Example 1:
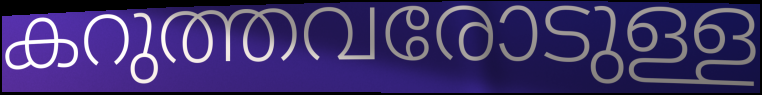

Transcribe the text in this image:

കറുത്തവരോടുള്ള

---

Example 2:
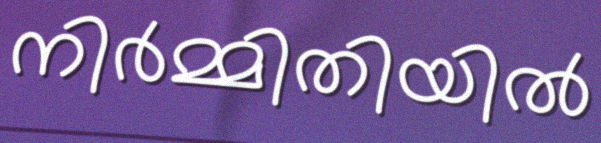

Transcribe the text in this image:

നിർമ്മിതിയിൽ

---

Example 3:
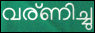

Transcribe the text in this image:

വര്ണിച്ചു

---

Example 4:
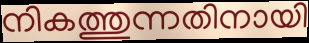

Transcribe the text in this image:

നികത്തുന്നതിനായി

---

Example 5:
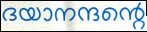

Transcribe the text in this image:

ദയാനന്ദന്റെ